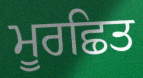
ਮੂਰਛਿਤ